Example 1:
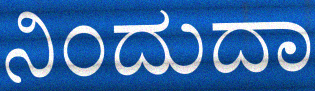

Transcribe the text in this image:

ನಿಂದುದಾ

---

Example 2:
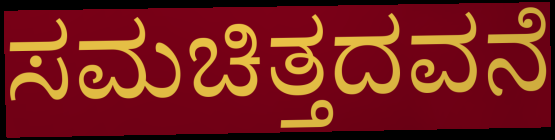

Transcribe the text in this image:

ಸಮಚಿತ್ತದವನೆ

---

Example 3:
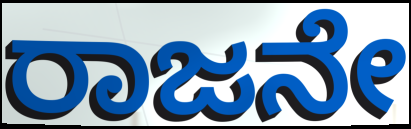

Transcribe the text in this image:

ರಾಜನೇ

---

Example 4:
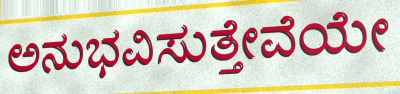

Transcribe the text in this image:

ಅನುಭವಿಸುತ್ತೇವೆಯೇ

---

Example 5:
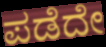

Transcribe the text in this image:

ಪಡೆದೇ